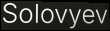
Solovyev